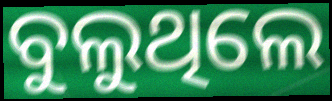
ବୁଲୁଥିଲେ